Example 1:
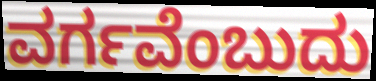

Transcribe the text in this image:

ವರ್ಗವೆಂಬುದು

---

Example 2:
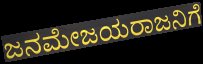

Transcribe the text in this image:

ಜನಮೇಜಯರಾಜನಿಗೆ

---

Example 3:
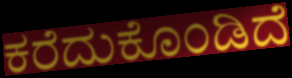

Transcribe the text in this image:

ಕರೆದುಕೊಂಡಿದೆ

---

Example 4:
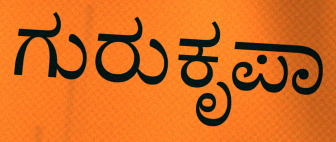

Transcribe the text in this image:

ಗುರುಕೃಪಾ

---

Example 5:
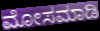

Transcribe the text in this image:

ಮೋಸಮಾಡಿ